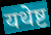
यथेष्ट